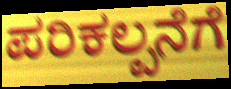
ಪರಿಕಲ್ಪನೆಗೆ